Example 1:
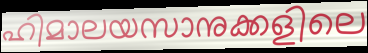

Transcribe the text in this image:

ഹിമാലയസാനുക്കളിലെ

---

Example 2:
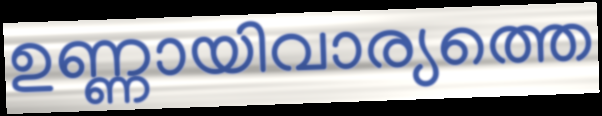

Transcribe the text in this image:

ഉണ്ണായിവാര്യത്തെ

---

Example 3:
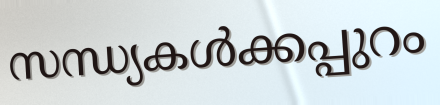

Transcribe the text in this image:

സന്ധ്യകൾക്കപ്പുറം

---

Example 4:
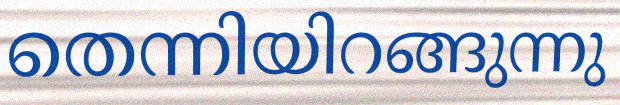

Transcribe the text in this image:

തെന്നിയിറങ്ങുന്നു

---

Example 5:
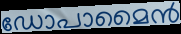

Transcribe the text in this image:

ഡോപാമൈൻ